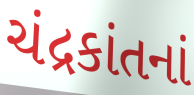
ચંદ્રકાંતનાં